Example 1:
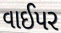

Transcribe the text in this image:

વાઈપર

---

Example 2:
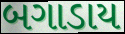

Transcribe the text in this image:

બગાડાય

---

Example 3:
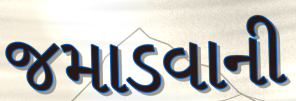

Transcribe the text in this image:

જમાડવાની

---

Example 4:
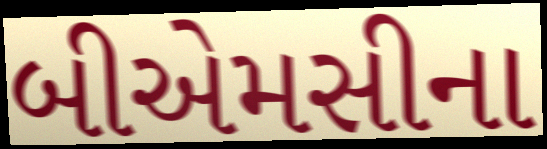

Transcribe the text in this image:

બીએમસીના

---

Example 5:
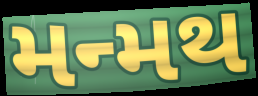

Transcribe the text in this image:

મન્મથ